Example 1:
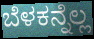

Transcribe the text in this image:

ಬೆಳಕನ್ನೆಲ್ಲ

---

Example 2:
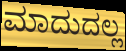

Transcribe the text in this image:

ಮಾದುದಲ್ಲ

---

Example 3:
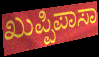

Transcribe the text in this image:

ಖುಪ್ಪಿಪಾಸಾ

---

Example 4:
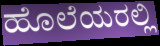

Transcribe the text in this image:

ಹೊಲೆಯರಲ್ಲಿ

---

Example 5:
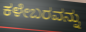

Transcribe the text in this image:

ಕಳೇಬರವನ್ನು